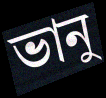
ভানু